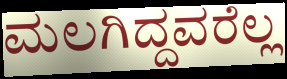
ಮಲಗಿದ್ದವರೆಲ್ಲ